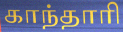
காந்தாரி